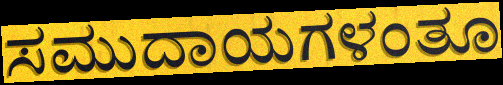
ಸಮುದಾಯಗಳಂತೂ